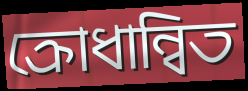
ক্ৰোধান্বিত